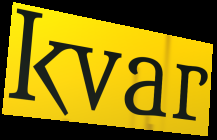
kvar